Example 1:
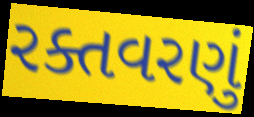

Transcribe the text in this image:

રક્તવરણું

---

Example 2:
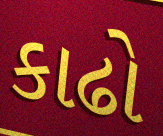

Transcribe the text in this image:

કાઢો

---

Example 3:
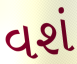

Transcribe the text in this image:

વશં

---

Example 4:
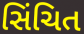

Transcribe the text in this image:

સિંચિત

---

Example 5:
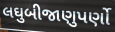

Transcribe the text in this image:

લઘુબીજાણુપર્ણો